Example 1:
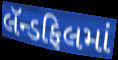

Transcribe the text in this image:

લૅન્ડફિલમાં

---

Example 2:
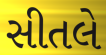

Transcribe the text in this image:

સીતલે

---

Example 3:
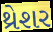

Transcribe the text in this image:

થ્રેશર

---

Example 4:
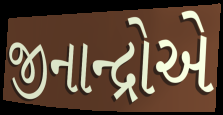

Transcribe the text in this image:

જીનાન્દ્રોએ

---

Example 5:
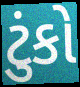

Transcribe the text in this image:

ટુંકો